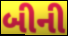
બીની